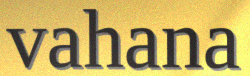
vahana